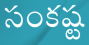
సంకష్ట